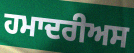
ਹਮਾਦਰੀਅਸ